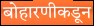
बोहारणीकडून